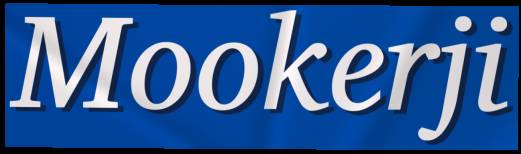
Mookerji